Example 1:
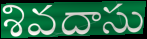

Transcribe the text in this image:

శివదాసు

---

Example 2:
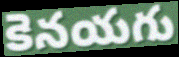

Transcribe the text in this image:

కెనయగు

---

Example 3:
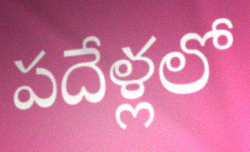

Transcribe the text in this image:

పదేళ్లలో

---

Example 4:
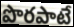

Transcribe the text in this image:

పొరపాటే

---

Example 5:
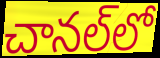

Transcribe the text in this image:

చానల్‌లో